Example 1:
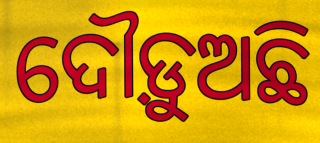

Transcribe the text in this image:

ଦୌଡ଼ୁଅଛି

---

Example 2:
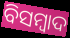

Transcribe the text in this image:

ବିସମ୍ୱାଦ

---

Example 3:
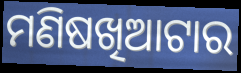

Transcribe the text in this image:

ମଣିଷଖିଆଟାର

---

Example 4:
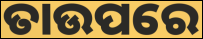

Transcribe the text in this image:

ତାଉପରେ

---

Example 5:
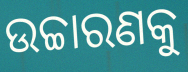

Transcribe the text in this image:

ଉଚ୍ଚାରଣକୁ